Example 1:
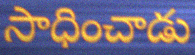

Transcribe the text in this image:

సాధించాడు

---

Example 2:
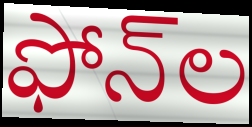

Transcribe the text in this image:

ఫోన్‌ల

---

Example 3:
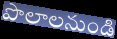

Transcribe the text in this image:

పొలాలనుండి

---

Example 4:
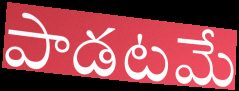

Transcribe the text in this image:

పాడటమే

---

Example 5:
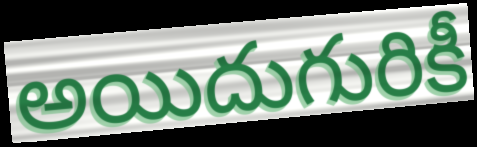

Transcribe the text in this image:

అయిదుగురికీ